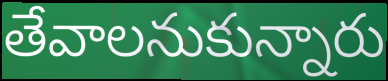
తేవాలనుకున్నారు